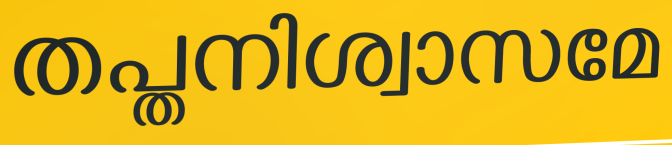
തപ്തനിശ്വാസമേ